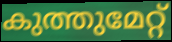
കുത്തുമേറ്റ്